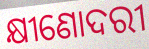
କ୍ଷୀଣୋଦରୀ